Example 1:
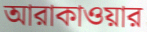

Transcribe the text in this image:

আরাকাওয়ার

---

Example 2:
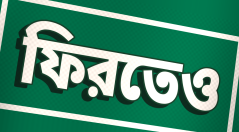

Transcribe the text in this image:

ফিরতেও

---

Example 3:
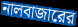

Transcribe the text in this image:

নালবাজারের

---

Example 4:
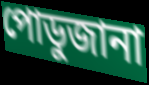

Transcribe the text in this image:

পোডুজানা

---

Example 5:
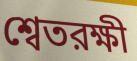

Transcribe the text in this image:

শ্বেতরক্ষী